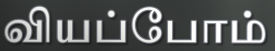
வியப்போம்